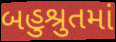
બહુશ્રુતમાં